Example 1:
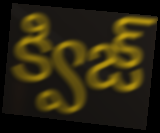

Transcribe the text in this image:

క్విజ్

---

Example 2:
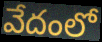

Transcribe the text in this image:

వేదంలో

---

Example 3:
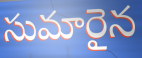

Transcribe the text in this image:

సుమారైన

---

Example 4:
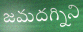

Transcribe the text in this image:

జమదగ్నిని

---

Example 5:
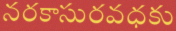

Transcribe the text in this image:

నరకాసురవధకు